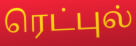
ரெட்புல்